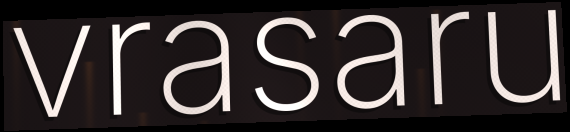
vrasaru